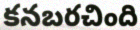
కనబరచింది